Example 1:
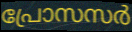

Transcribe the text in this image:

പ്രോസസർ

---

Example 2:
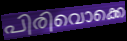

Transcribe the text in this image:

പിരിവൊക്കെ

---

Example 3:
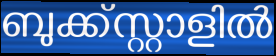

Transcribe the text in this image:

ബുക്ക്സ്റ്റാളിൽ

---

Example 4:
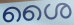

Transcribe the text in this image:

ശൈ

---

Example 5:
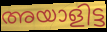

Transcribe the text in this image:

അയാളിട്ട